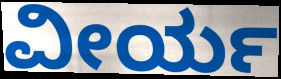
ವೀರ್ಯ